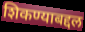
शिकण्याबद्दल